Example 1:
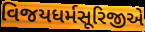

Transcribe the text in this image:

વિજયધર્મસૂરિજીએ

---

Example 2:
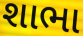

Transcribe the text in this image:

શાભા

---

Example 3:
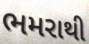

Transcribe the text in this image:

ભમરાથી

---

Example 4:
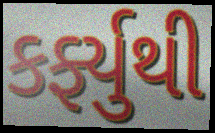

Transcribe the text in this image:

કર્ફ્યુથી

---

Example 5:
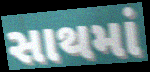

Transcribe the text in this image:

સાથમાં